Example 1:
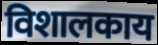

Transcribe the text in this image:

विशालकाय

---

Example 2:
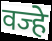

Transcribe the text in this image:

वज्हे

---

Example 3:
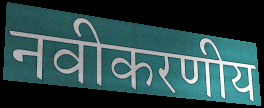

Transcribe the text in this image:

नवीकरणीय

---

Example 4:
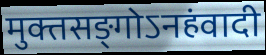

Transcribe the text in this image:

मुक्तसङ्गोऽनहंवादी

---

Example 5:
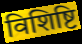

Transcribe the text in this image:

विशिष्टि